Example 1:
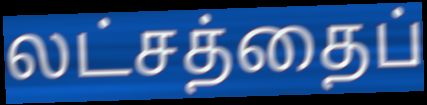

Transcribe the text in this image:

லட்சத்தைப்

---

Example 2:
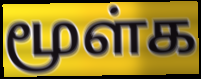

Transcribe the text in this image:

மூள்க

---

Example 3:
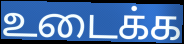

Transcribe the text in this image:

உடைக்க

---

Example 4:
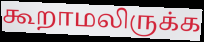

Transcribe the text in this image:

கூறாமலிருக்க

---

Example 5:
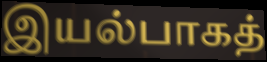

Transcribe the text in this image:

இயல்பாகத்